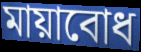
মায়াবোধ